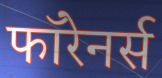
फॉरेनर्स